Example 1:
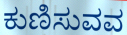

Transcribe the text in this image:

ಕುಣಿಸುವವ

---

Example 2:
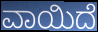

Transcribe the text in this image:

ವಾಯಿದೆ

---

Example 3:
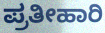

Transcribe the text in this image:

ಪ್ರತೀಹಾರಿ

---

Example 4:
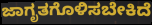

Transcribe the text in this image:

ಜಾಗೃತಗೊಳಿಸಬೇಕಿದೆ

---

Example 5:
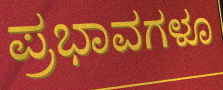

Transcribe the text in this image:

ಪ್ರಭಾವಗಳೂ